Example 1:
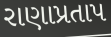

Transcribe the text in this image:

રાણાપ્રતાપ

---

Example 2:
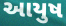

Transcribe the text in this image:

આયુષ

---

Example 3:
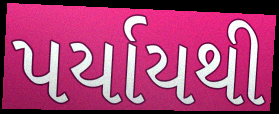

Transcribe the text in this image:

પર્યાયથી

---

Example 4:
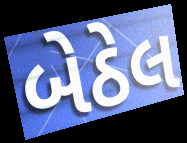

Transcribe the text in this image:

બેઠેલ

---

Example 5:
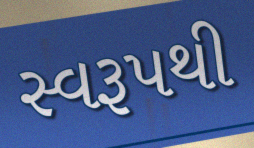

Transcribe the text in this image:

સ્વરૂપથી